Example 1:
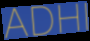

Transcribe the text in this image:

ADHI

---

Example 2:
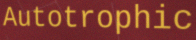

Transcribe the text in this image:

Autotrophic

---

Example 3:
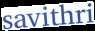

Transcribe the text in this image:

savithri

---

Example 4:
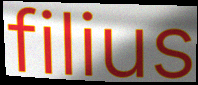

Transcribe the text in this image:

filius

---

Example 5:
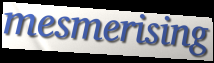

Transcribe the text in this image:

mesmerising